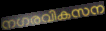
നഗരവികസന